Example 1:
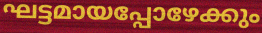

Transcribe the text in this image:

ഘട്ടമായപ്പോഴേക്കും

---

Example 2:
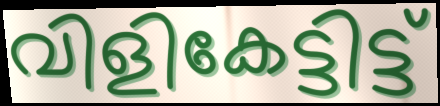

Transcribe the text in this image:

വിളികേട്ടിട്ട്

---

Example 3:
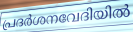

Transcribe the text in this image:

പ്രദർശനവേദിയിൽ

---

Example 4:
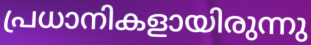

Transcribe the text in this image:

പ്രധാനികളായിരുന്നു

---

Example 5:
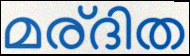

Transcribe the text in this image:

മര്ദിത